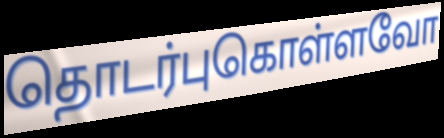
தொடர்புகொள்ளவோ